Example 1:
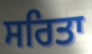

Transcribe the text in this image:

ਸਰਿਤਾ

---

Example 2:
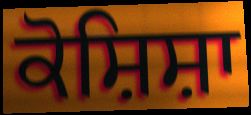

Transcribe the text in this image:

ਕੋਸ਼ਿਸ਼ਾ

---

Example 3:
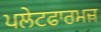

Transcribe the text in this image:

ਪਲੇਟਫਾਰਮਜ਼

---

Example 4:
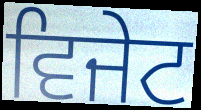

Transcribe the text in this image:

ਵਿਜੇਟ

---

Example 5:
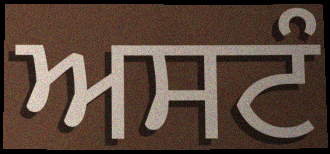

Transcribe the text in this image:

ਅਸਟੰ